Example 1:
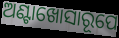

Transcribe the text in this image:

ଅଣ୍ଟାଖୋସାରୂପେ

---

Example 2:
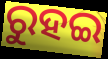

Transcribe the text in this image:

ରୁହଇ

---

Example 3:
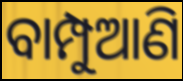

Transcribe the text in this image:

ବାମ୍ପୁଆଣି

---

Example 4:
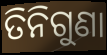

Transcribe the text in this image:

ତିନିଗୁଣା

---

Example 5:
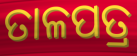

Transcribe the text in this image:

ତାଳପତ୍ର